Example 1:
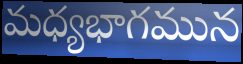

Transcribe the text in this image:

మధ్యభాగమున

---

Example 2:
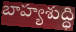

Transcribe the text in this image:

బాహ్యశుద్ధి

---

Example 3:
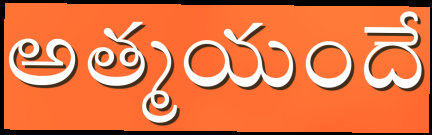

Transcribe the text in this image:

అత్మయందే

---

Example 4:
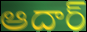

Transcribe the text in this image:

ఆదార్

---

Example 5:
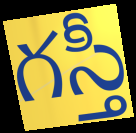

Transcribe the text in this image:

గస్తీ